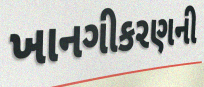
ખાનગીકરણની